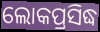
ଲୋକପ୍ରସିଦ୍ଧ